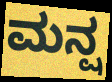
ಮನ್ಷ